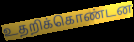
உதறிக்கொண்டன